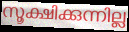
സൂക്ഷിക്കുന്നില്ല